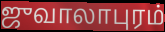
ஜுவாலாபுரம்